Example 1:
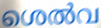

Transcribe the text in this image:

ശെൽവ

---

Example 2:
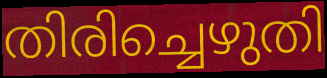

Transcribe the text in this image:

തിരിച്ചെഴുതി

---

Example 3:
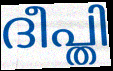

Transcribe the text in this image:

ദീപ്തി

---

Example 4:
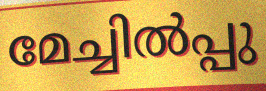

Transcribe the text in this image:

മേച്ചിൽപ്പു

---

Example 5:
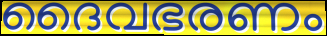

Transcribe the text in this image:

ദൈവഭരണം